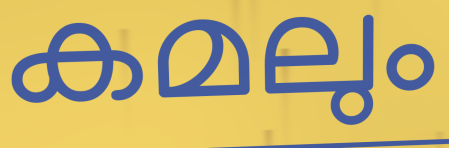
കമലും